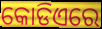
କୋଡିଏରେ